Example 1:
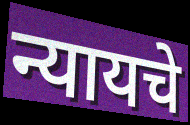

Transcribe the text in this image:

न्यायचे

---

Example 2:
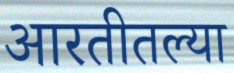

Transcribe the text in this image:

आरतीतल्या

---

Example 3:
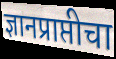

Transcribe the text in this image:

ज्ञानप्राप्तीचा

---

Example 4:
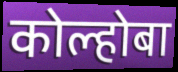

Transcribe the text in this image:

कोल्होबा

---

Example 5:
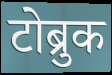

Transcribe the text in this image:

टोब्रुक